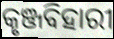
କୃଞ୍ଜବିହାରୀ